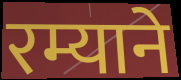
रम्याने